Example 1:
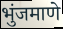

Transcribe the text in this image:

भुंजमाणे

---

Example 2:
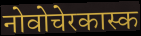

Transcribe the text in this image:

नोवोचेरकास्क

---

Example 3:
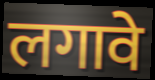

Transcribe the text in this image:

लगावे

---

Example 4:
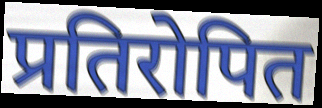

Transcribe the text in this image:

प्रतिरोपित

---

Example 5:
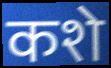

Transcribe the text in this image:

कशे